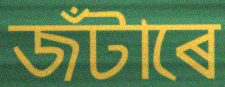
জঁটাৰে